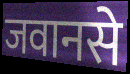
जवानसे